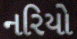
નરિયો